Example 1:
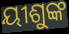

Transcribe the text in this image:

ୟୀଶୁଙ୍କ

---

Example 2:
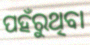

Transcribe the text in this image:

ପହଁରୁଥିବା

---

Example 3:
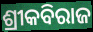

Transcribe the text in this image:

ଶ୍ରୀକବିରାଜ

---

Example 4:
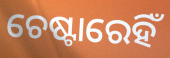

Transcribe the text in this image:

ଚେଷ୍ଟାରେହିଁ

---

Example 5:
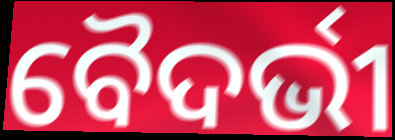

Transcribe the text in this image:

ବୈଦର୍ଭୀ